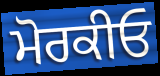
ਮੋਰਕੀਓ